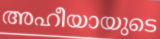
അഹീയായുടെ